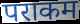
पराकम